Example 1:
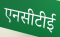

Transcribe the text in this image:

एनसीटीई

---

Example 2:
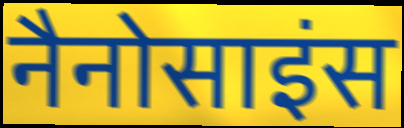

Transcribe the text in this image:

नैनोसाइंस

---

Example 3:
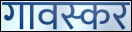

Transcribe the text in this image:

गावस्‍कर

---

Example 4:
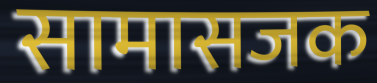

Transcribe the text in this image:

सामासजक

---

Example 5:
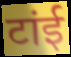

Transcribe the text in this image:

टांई